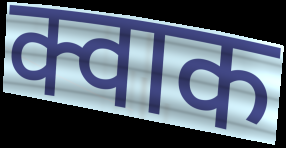
क्वाक